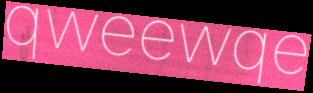
qweewqe